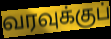
வரவுக்குப்